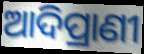
ଆଦିପ୍ରାଣୀ